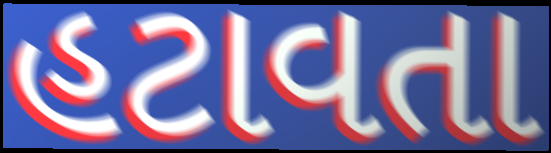
હટાવતા